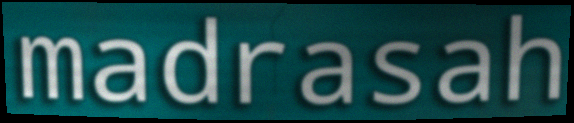
madrasah